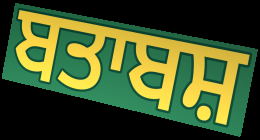
ਬਤਾਬਸ਼